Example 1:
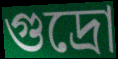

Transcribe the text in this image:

গুদ্ৰো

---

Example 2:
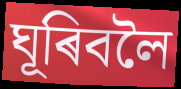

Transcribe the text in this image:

ঘূৰিবলৈ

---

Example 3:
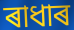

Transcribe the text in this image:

ৰাধাৰ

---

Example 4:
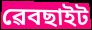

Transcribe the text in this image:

ৱেবছাইট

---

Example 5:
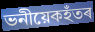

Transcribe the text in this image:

ভনীয়েকহঁতৰ